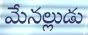
మేనల్లుడు